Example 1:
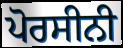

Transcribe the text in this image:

ਪੋਰਸੀਨੀ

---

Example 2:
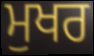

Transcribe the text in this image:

ਮੁਖਰ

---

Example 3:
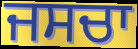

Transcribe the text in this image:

ਜਸਚਾ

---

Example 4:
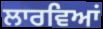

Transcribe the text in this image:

ਲਾਰਵਿਆਂ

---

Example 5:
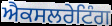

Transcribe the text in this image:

ਐਕਸਲਰੇਟਿੰਗ